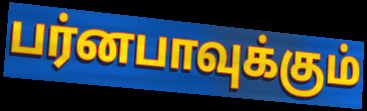
பர்னபாவுக்கும்